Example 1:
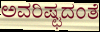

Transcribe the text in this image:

ಅವರಿಷ್ಟದಂತೆ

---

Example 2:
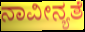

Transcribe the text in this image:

ನಾವೀನ್ಯತೆ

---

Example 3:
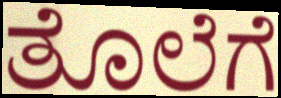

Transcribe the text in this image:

ತೊಲೆಗೆ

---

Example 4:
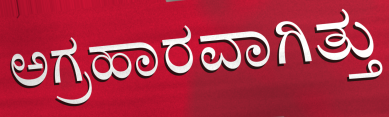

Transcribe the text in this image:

ಅಗ್ರಹಾರವಾಗಿತ್ತು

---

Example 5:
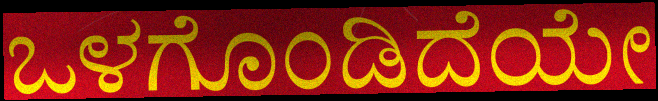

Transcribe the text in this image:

ಒಳಗೊಂಡಿದೆಯೇ